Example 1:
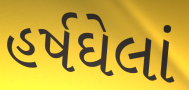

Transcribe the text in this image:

હર્ષઘેલાં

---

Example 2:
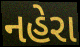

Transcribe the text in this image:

નહેરા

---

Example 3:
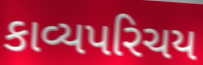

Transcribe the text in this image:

કાવ્યપરિચય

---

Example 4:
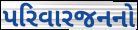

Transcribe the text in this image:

પરિવારજનનો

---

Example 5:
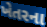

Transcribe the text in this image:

ખેતરના